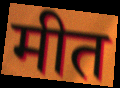
मीत